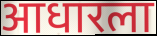
आधारला